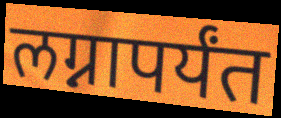
लग्नापर्यंत